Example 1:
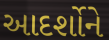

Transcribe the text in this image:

આદર્શોને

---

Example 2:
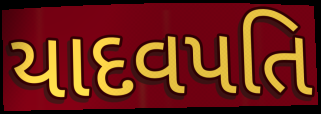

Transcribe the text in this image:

યાદવપતિ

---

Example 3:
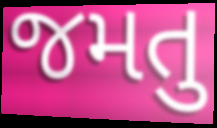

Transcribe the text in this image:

જમતુ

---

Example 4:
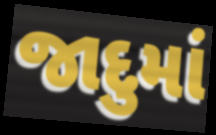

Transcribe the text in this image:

જાદુમાં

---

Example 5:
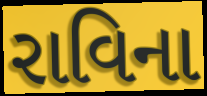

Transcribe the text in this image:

રાવિના